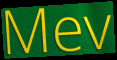
Mev